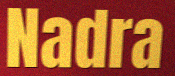
Nadra